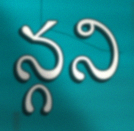
న్గని